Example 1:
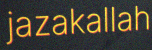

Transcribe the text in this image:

jazakallah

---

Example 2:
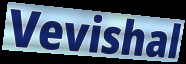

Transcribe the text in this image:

Vevishal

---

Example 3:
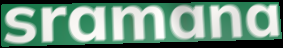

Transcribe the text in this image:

sramana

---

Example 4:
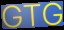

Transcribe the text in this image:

GTG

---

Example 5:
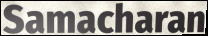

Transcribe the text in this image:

Samacharan